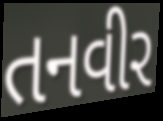
તનવીર